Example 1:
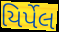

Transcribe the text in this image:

યિર્પેલ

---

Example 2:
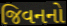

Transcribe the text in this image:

જિવનનો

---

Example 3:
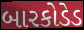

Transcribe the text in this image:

બારકોડેડ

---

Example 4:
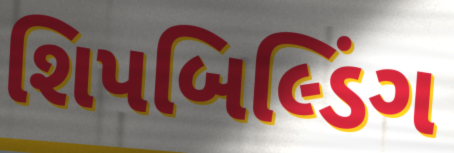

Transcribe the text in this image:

શિપબિલ્ડિંગ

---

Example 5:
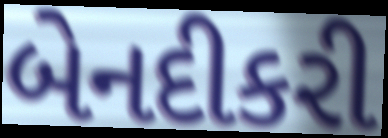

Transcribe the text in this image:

બેનદીકરી